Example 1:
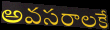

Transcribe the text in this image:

అవసరాలకే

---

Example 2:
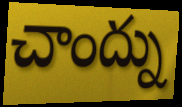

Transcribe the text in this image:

చాంద్ను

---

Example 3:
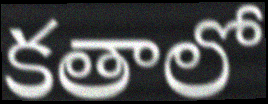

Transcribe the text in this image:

కతాలో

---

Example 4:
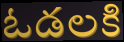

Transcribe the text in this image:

ఓడలకి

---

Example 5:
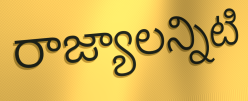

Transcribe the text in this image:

రాజ్యాలన్నిటి